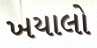
ખયાલો